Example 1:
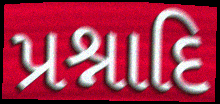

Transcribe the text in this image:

પ્રશ્નાદિ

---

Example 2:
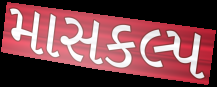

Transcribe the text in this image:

માસકલ્પ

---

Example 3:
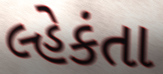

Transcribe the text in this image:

લ્હેકંતા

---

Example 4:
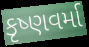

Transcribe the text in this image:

કૃષ્ણવર્મા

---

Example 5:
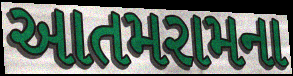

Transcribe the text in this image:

આતમરામના